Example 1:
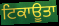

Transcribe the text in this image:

ਟਿਕਾਊਤਾ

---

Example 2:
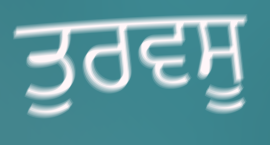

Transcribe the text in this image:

ਤੁਰਵਸੂ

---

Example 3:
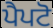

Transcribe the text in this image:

ਪੈਪਟੋ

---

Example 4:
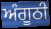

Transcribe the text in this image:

ਅੰਗੂਠੀ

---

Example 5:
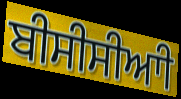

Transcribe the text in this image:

ਬੀਸੀਸੀਆੀ